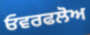
ਓਵਰਫਲੋਅ